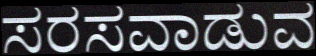
ಸರಸವಾಡುವ